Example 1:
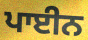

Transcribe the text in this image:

ਪਾਈਨ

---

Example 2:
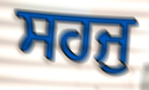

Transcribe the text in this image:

ਸਹਜੁ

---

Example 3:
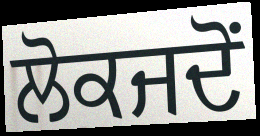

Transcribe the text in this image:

ਲੋਕਜਦੋਂ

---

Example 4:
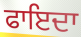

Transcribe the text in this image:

ਫਾਇਦਾ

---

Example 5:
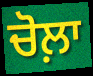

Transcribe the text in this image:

ਚੋਲ਼ਾ